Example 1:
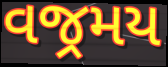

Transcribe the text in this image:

વજ્રમય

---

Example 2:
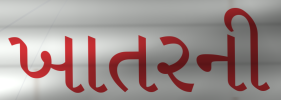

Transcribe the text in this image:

ખાતરની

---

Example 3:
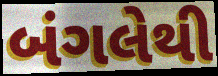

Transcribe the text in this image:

બંગલેથી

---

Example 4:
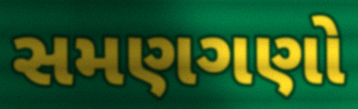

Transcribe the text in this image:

સમણગણો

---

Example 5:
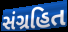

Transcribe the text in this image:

સંગ્રહિત